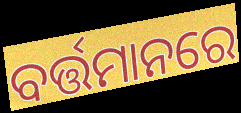
ବର୍ତ୍ତମାନରେ